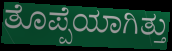
ತೊಪ್ಪೆಯಾಗಿತ್ತು